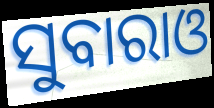
ସୁବାରାଓ